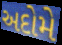
અદોમે